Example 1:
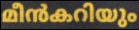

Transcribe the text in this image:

മീൻകറിയും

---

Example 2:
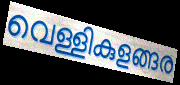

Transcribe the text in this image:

വെള്ളികുളങ്ങര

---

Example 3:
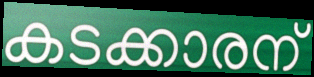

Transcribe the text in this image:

കടക്കാരന്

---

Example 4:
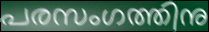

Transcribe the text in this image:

പരസംഗത്തിനു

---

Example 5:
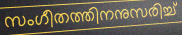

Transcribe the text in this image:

സംഗീതത്തിനനുസരിച്ച്